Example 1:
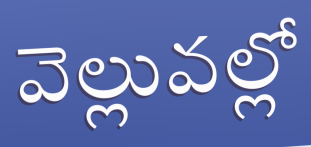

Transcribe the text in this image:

వెల్లువల్లో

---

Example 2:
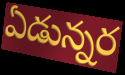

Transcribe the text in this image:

ఏడున్నర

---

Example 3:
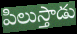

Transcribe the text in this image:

పిలుస్తాడు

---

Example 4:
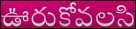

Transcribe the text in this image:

ఊరుకోవలసి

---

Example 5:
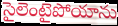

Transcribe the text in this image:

సైలెంటైపోయాను